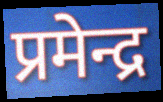
प्रमेन्द्र